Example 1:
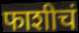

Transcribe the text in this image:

फाशीचं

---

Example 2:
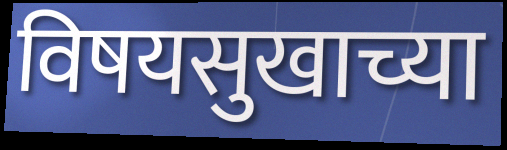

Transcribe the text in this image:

विषयसुखाच्या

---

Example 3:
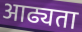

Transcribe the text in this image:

आढ्यता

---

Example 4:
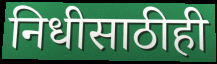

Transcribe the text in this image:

निधीसाठीही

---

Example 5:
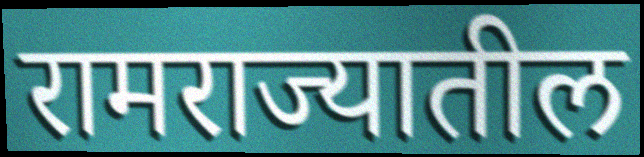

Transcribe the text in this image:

रामराज्यातील